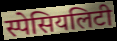
स्पेसियलिटी